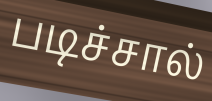
படிச்சால்